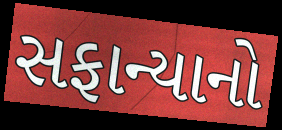
સફાન્યાનો